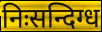
निःसन्दिग्ध